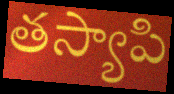
తస్యాపి